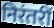
निरंतरीं